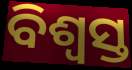
ବିଶ୍ଵସ୍ତ